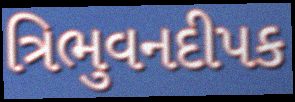
ત્રિભુવનદીપક